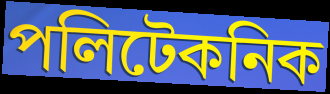
পলিটেকনিক